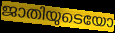
ജാതിയുടെയോ